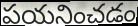
పయనించడం